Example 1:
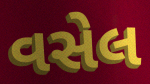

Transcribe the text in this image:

વસેલ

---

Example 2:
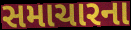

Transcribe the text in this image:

સમાચારના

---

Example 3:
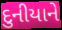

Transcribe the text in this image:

દુનીયાને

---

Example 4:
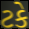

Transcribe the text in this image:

ટકે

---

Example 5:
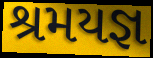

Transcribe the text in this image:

શ્રમયજ્ઞ